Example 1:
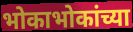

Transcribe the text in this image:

भोकाभोकांच्या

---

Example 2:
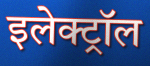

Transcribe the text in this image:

इलेक्ट्रॉल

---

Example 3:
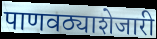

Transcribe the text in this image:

पाणवठ्याशेजारी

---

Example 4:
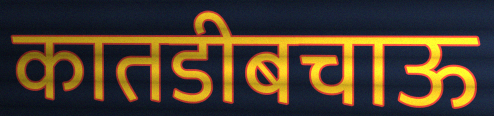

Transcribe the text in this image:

कातडीबचाऊ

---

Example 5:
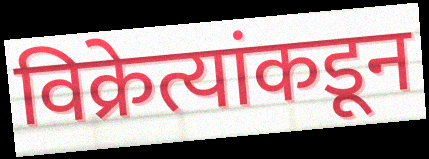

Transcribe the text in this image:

विक्रेत्यांकडून